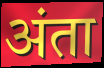
अंता